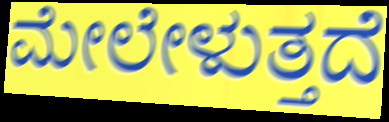
ಮೇಲೇಳುತ್ತದೆ